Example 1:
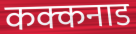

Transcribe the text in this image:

कक्कनाड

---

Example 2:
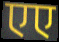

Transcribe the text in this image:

एए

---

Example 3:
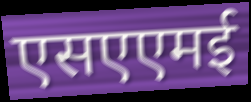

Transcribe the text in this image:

एसएएमई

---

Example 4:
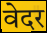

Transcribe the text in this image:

वेदर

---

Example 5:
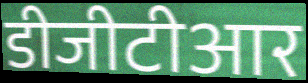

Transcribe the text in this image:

डीजीटीआर